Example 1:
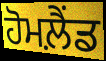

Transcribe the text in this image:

ਹੋਮਲ਼ੈਂਡ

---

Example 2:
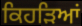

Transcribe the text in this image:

ਕਿਹੜਿਆਂ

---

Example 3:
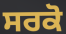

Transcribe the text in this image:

ਸਰਕੋ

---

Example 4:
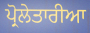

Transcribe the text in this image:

ਪ੍ਰੋਲੇਤਾਰੀਆ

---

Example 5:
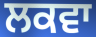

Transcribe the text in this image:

ਲਕਵਾ